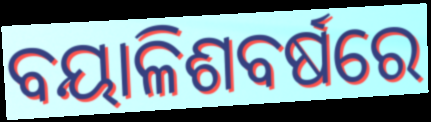
ବୟାଳିଶବର୍ଷରେ